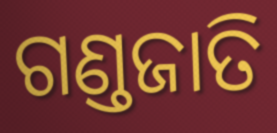
ଗଣ୍ଡଜାତି